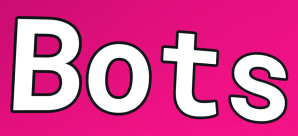
Bots